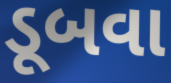
ડૂબવા